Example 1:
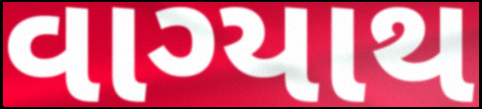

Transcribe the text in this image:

વાગ્યાથ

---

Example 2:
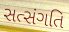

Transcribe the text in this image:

સત્સંગતિ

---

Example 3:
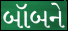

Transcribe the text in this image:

બૉબને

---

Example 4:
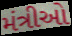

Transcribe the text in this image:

મંત્રીઓ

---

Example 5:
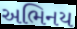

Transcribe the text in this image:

અભિનય